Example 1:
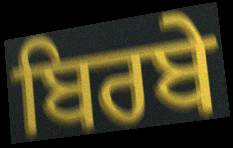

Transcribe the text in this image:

ਬਿਰਬੇ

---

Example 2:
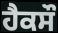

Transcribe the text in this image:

ਹੈਕਸੌ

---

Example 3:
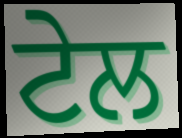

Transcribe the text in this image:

ਟੇਲ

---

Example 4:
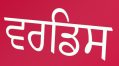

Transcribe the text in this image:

ਵਰਡਿਸ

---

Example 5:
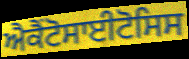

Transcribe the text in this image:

ਐਕੈਂਟੋਸਾਈਟੋਸਿਸ